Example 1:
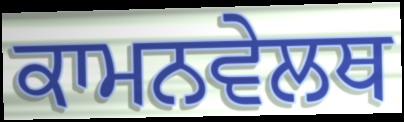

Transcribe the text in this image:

ਕਾਮਨਵੇਲਥ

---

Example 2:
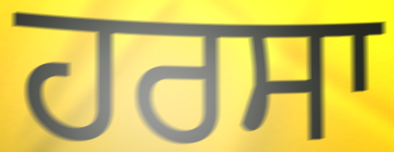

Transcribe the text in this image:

ਹਰਸਾ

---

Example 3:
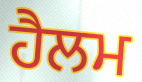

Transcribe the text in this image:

ਹੈਲਮ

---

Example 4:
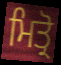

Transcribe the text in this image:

ਮਿਤ੍ਰੋ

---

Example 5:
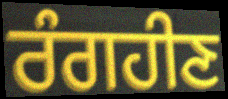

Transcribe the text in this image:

ਰੰਗਹੀਣ